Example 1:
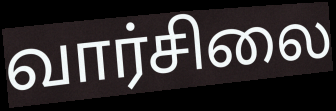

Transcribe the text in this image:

வார்சிலை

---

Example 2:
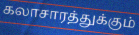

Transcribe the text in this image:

கலாசாரத்துக்கும்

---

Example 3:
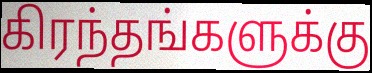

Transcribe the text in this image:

கிரந்தங்களுக்கு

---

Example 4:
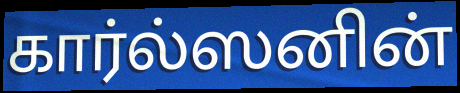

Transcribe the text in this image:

கார்ல்ஸனின்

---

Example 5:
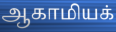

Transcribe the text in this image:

ஆகாமியக்